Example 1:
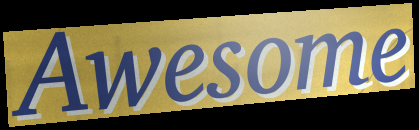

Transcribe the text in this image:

Awesome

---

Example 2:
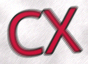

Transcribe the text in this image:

CX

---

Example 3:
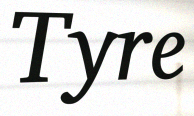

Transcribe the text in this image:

Tyre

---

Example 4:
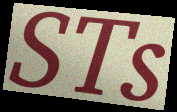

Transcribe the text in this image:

STs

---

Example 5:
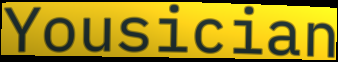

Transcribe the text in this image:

Yousician